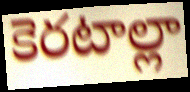
కెరటాల్లా